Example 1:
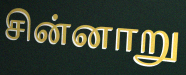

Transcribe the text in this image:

சின்னாறு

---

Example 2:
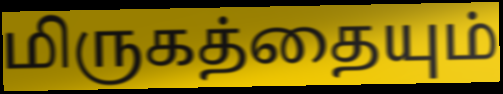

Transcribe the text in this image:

மிருகத்தையும்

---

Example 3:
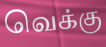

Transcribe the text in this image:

வெக்கு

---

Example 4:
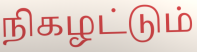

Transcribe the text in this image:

நிகழட்டும்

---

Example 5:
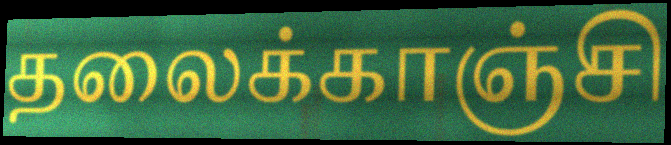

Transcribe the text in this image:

தலைக்காஞ்சி